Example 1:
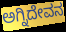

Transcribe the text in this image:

ಅಗ್ನಿದೇವನ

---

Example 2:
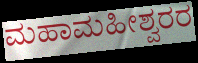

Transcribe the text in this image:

ಮಹಾಮಹೀಶ್ವರರ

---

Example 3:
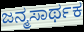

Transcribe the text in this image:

ಜನ್ಮಸಾರ್ಥಕ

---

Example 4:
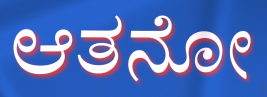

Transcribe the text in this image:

ಆತನೋ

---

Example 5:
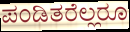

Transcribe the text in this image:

ಪಂಡಿತರೆಲ್ಲರೂ